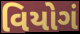
વિયોગં